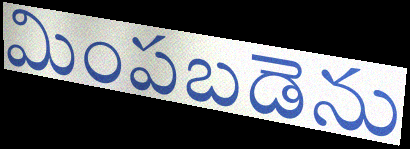
మింపబడెను